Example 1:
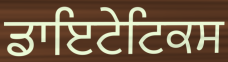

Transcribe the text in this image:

ਡਾਇਟੇਟਿਕਸ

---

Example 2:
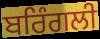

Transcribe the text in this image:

ਬਰਿੰਗਲੀ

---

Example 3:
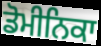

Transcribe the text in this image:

ਡੋਮੀਨਿਕਾ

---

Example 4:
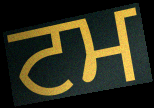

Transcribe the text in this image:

ਟਮ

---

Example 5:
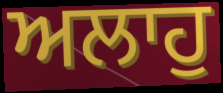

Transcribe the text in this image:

ਅਲਾਹੁ